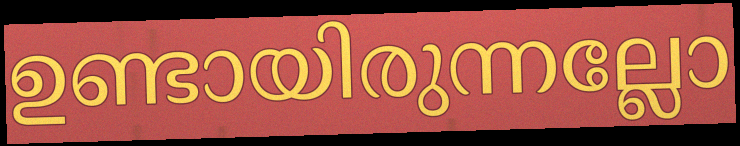
ഉണ്ടായിരുന്നല്ലോ